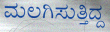
ಮಲಗಿಸುತ್ತಿದ್ದ